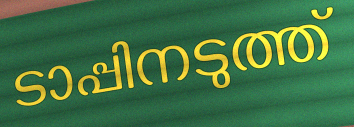
ടാപ്പിനടുത്ത്